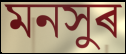
মনসুৰ